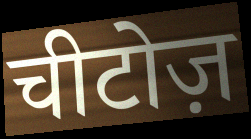
चीटोज़